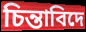
চিন্তাবিদে